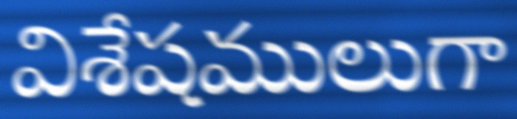
విశేషములుగా